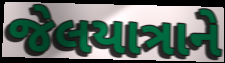
જેલયાત્રાને